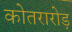
कोतरारोड़